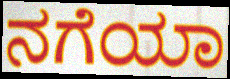
ನಗೆಯಾ